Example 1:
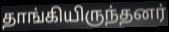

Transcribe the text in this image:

தாங்கியிருந்தனர்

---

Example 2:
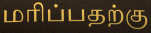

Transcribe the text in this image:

மரிப்பதற்கு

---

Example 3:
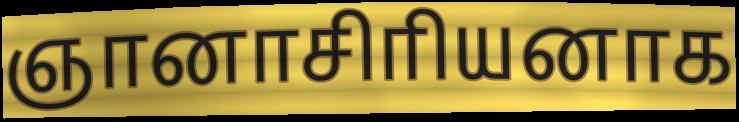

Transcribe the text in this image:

ஞானாசிரியனாக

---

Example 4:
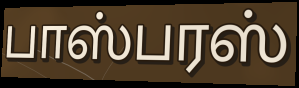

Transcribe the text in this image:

பாஸ்பரஸ்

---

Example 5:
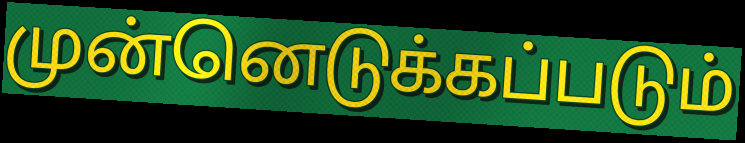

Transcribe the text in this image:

முன்னெடுக்கப்படும்